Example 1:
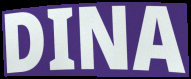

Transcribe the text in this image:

DINA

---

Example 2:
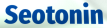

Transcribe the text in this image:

Seotonin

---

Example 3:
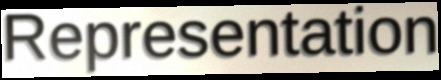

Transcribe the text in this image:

Representation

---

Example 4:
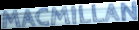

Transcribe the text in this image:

MACMILLAN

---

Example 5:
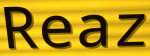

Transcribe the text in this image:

Reaz